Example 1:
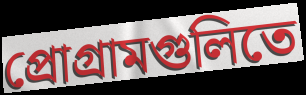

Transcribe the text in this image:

প্রোগ্রামগুলিতে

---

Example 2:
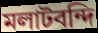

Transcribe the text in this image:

মলাটবন্দি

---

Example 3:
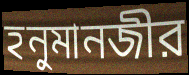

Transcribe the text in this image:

হনুমানজীর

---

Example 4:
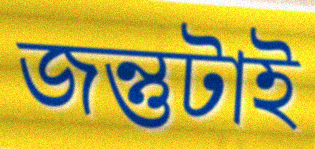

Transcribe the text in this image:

জন্তুটাই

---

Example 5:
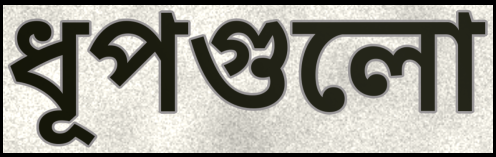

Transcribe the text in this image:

ধূপগুলো